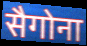
सैगोना